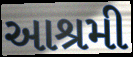
આશ્રમી